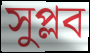
সুপ্লব